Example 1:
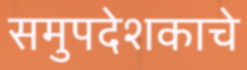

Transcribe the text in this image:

समुपदेशकाचे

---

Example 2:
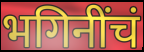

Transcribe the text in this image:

भगिनींचं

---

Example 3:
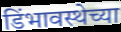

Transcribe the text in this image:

डिंभावस्थेच्या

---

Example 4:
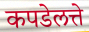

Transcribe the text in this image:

कपडेलत्ते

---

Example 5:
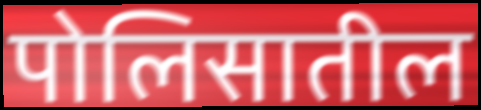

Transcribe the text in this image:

पोलिसातील